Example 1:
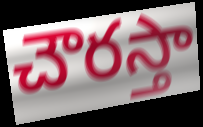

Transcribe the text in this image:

చౌరస్తా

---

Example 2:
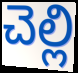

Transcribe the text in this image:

చెల్లి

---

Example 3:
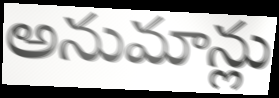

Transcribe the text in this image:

అనుమాన్లు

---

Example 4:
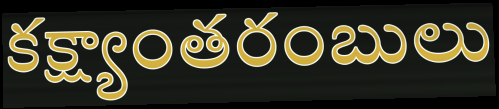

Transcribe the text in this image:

కక్ష్యాంతరంబులు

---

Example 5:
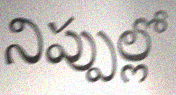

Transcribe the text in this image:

నిప్పుల్లో